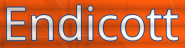
Endicott